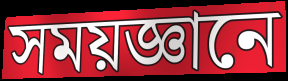
সময়জ্ঞানে